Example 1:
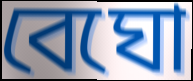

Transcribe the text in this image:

বেঘো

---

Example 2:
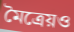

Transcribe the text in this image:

মৈত্রেয়ও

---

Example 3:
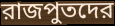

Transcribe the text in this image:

রাজপুতদের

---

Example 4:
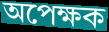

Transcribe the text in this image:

অপেক্ষক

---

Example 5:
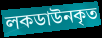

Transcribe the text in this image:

লকডাউনকৃত